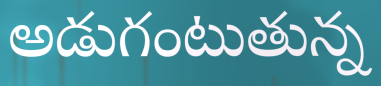
అడుగంటుతున్న